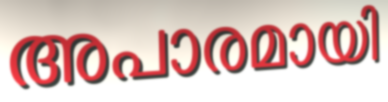
അപാരമായി